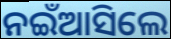
ନଇଁଆସିଲେ